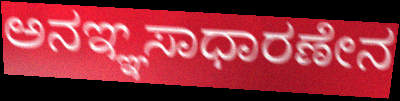
ಅನಞ್ಞಸಾಧಾರಣೇನ